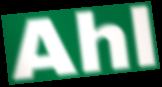
Ahl